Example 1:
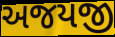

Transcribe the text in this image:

અજયજી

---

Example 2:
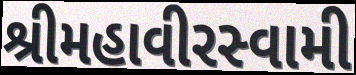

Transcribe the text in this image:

શ્રીમહાવીરસ્વામી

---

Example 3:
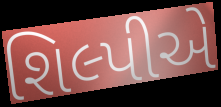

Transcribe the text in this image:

શિલ્પીએ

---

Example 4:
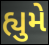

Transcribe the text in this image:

હ્યુમે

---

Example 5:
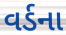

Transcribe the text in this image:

વર્ડના